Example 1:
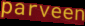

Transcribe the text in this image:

parveen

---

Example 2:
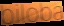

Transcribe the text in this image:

biloba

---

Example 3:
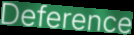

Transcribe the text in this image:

Deference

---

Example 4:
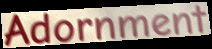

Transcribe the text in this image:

Adornment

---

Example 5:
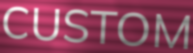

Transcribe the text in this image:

CUSTOM